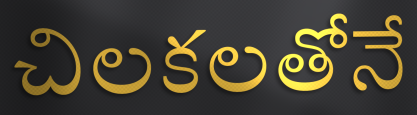
చిలకలతోనే